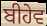
ਬੀਹੇਵ